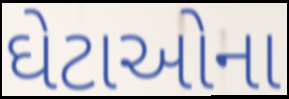
ઘેટાઓના